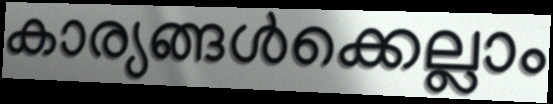
കാര്യങ്ങൾക്കെല്ലാം